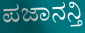
ಪಜಾನನ್ತಿ